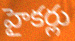
హైకర్లు